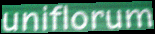
uniflorum